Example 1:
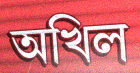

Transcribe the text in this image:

অখিল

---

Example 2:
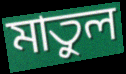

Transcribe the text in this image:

মাতুল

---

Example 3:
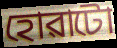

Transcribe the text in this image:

হোৱাটো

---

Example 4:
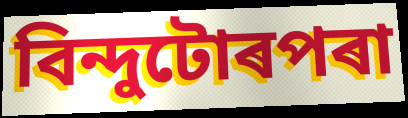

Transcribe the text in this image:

বিন্দুটোৰপৰা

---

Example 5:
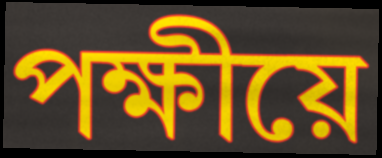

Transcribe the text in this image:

পক্ষীয়ে